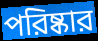
পরিষ্কার